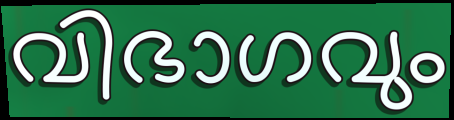
വിഭാഗവും